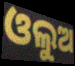
ଓଲୁଅ